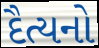
દૈત્યનો